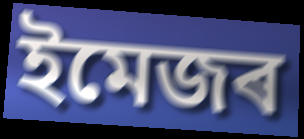
ইমেজৰ